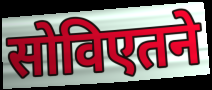
सोविएतने